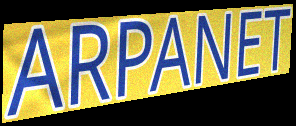
ARPANET